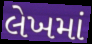
લેખમાં